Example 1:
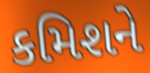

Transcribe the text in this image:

કમિશને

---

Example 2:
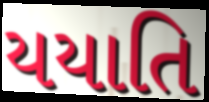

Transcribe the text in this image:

યયાતિ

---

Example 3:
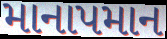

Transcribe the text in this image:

માનાપમાન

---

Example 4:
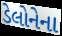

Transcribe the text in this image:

ડેલોનેના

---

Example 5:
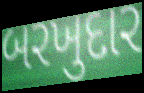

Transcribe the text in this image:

બરખુદાર